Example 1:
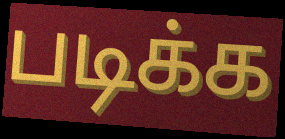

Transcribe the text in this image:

படிக்க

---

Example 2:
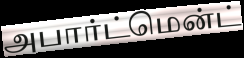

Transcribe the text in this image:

அபார்ட்மென்ட்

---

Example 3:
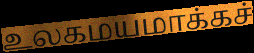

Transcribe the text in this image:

உலகமயமாக்கச்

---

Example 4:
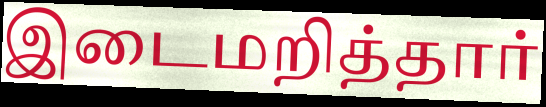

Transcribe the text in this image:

இடைமறித்தார்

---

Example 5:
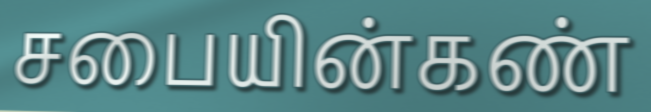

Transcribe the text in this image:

சபையின்கண்